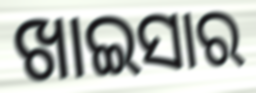
ଖାଇସାର